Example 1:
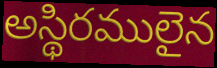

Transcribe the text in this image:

అస్థిరములైన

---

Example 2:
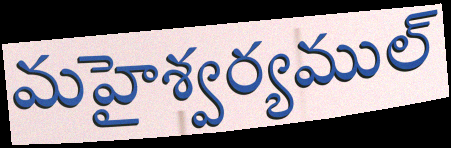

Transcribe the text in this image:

మహైశ్వర్యముల్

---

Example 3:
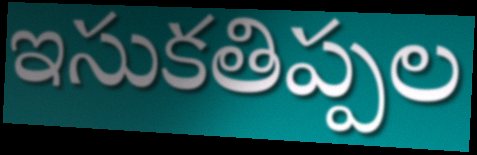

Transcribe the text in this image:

ఇసుకతిప్పల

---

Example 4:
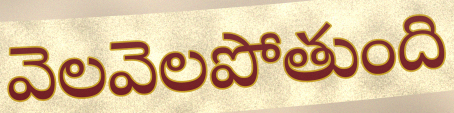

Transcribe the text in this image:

వెలవెలపోతుంది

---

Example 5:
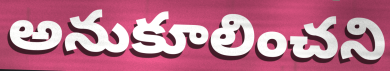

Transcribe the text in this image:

అనుకూలించని